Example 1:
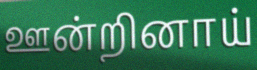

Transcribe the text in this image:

ஊன்றினாய்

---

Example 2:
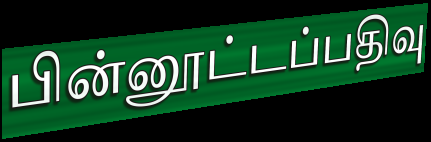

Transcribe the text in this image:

பின்னூட்டப்பதிவு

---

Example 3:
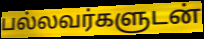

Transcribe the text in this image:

பல்லவர்களுடன்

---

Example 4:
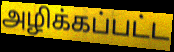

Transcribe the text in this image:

அழிக்கப்பட்ட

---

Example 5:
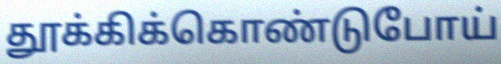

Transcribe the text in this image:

தூக்கிக்கொண்டுபோய்